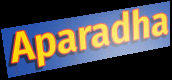
Aparadha